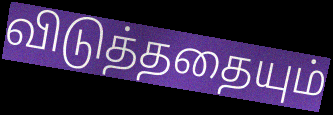
விடுத்ததையும்